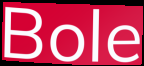
Bole